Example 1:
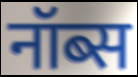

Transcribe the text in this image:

नॉब्स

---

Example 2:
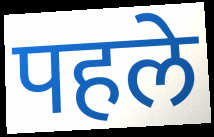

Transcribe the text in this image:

पहले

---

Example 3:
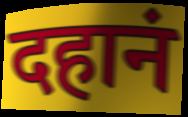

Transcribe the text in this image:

दहानं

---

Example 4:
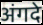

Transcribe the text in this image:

अंगदे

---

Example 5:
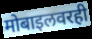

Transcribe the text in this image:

मोबाइलवरही